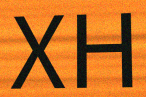
XH